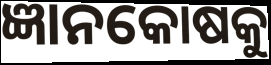
ଜ୍ଞାନକୋଷକୁ